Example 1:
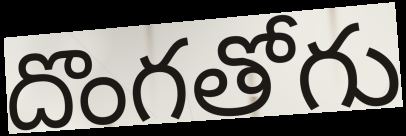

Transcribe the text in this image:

దొంగతోగు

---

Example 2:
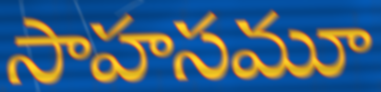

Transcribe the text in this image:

సాహసమూ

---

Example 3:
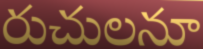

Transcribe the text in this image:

రుచులనూ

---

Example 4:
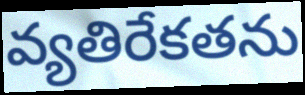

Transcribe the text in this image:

వ్యతిరేకతను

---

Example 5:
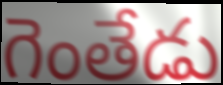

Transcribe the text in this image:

గెంతేడు